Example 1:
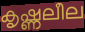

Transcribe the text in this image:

കൃഷ്ണലീല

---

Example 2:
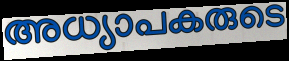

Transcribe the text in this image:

അധ്യാപകരുടെ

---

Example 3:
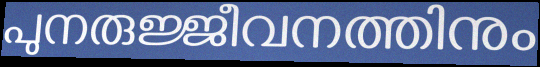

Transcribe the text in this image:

പുനരുജ്ജീവനത്തിനും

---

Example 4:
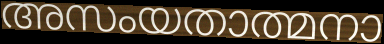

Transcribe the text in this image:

അസംയതാത്മനാ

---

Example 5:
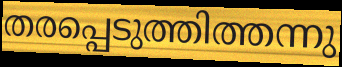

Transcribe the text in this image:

തരപ്പെടുത്തിത്തന്നു